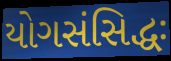
યોગસંસિદ્ધઃ